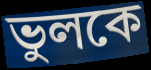
ভুলকে